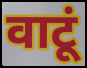
वाटूं